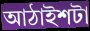
আঠাইশটা